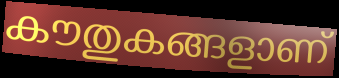
കൗതുകങ്ങളാണ്